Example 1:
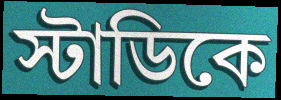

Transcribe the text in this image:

স্টাডিকে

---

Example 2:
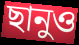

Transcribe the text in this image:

ছানুও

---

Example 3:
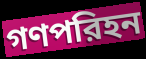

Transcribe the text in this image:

গণপরিহন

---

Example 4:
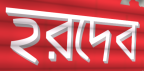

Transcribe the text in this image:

হরদেব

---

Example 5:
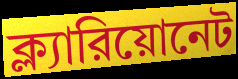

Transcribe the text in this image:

ক্ল্যারিয়োনেট